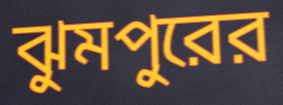
ঝুমপুরের